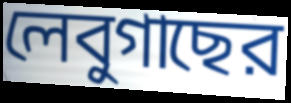
লেবুগাছের